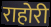
राहोरी